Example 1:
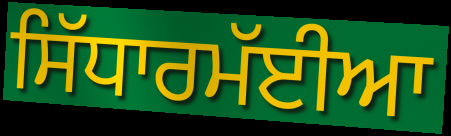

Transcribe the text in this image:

ਸਿੱਧਾਰਮੱਈਆ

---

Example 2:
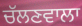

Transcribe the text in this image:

ਚੱਲਣਵਾਲਾ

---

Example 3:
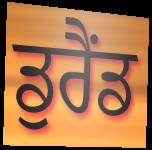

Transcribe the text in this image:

ਡੁਰੈਂਡ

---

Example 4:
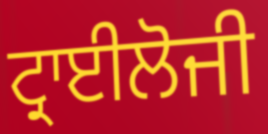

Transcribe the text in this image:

ਟ੍ਰਾਈਲੋਜੀ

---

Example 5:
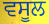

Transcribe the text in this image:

ਵਸੂਲ